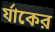
র্যাকের